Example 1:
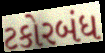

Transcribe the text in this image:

ટકોરબંધ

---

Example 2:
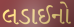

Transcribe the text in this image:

લડાઈનો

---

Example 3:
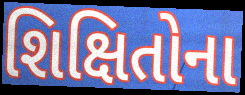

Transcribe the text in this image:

શિક્ષિતોના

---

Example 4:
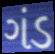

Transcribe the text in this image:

ગંડ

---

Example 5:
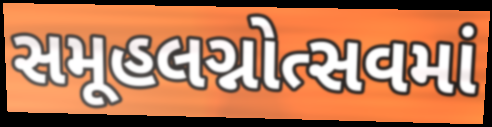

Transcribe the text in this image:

સમૂહલગ્નોત્સવમાં